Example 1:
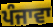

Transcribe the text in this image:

ਪੰਜਾਵਾ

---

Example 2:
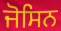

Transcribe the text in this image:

ਜੋਸਿਨ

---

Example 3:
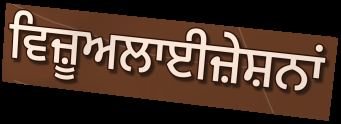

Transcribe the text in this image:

ਵਿਜ਼ੂਅਲਾਈਜ਼ੇਸ਼ਨਾਂ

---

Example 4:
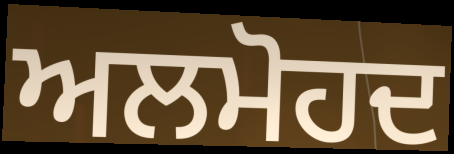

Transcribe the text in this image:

ਅਲਮੋਹਦ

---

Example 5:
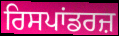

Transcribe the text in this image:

ਰਿਸਪਾਂਡਰਜ਼